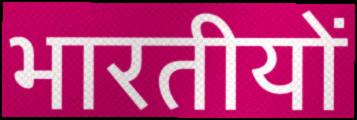
भारतीयों